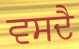
ਵਸਦੈ